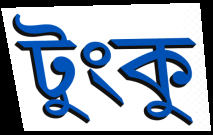
টুংকু